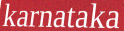
karnataka